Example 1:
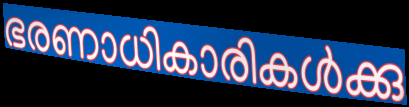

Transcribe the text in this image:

ഭരണാധികാരികൾക്കു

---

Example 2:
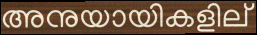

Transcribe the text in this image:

അനുയായികളില്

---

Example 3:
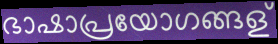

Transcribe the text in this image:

ഭാഷാപ്രയോഗങ്ങള്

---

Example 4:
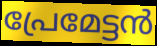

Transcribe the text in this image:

പ്രേമേട്ടൻ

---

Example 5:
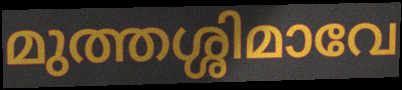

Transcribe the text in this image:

മുത്തശ്ശിമാവേ